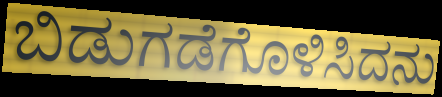
ಬಿಡುಗಡೆಗೊಳಿಸಿದನು